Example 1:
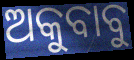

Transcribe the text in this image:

ଅକୁବାବୁ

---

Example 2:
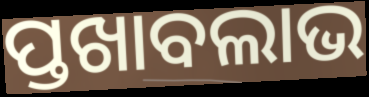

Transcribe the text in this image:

ପ୍ତଖାବଲାଭ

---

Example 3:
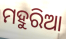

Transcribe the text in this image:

ମହୁରିଆ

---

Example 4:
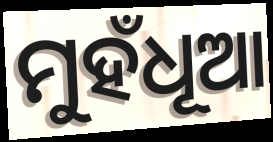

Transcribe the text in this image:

ମୁହଁଧୂଆ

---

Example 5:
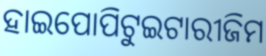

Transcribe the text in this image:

ହାଇପୋପିଟୁଇଟାରୀଜିମ